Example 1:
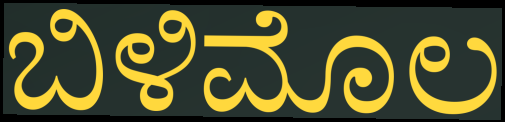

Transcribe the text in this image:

ಬಿಳಿಮೊಲ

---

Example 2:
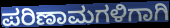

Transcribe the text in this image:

ಪರಿಣಾಮಗಳಿಗಾಗಿ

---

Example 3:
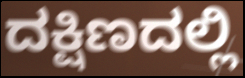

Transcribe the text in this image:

ದಕ್ಷಿಣದಲ್ಲಿ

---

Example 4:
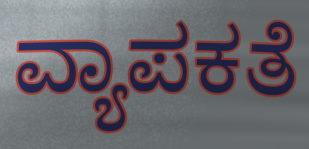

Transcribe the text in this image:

ವ್ಯಾಪಕತೆ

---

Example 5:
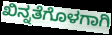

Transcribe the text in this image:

ಖಿನ್ನತೆಗೊಳಗಾಗಿ